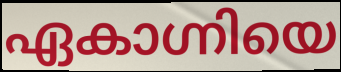
ഏകാഗ്നിയെ